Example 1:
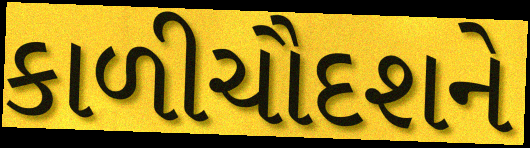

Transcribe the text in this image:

કાળીચૌદશને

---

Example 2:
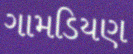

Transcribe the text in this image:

ગામડિયણ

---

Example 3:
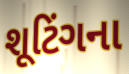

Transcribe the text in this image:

શૂટિંગના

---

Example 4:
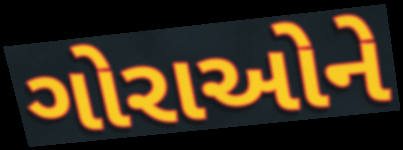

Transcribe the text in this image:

ગોરાઓને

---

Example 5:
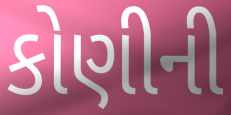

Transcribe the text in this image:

કોણીની